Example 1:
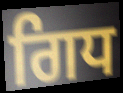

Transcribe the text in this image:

ਗਿਧ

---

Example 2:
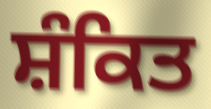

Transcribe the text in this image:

ਸ਼ੰਕਿਤ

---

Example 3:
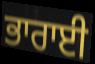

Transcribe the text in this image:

ਭਾਰਾਈ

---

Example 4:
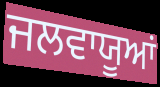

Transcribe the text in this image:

ਜਲਵਾਯੂਆਂ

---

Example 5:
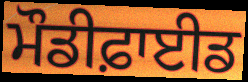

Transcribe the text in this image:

ਮੌਡੀਫ਼ਾਈਡ